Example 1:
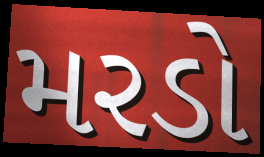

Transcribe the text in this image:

મરડો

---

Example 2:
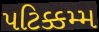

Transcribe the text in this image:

પટિક્કમ્મ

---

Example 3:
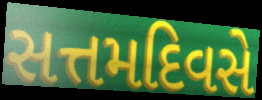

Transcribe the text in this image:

સત્તમદિવસે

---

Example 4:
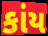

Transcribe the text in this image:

કાંય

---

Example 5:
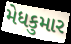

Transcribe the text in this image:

મેધકુમાર